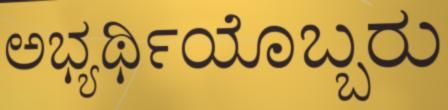
ಅಭ್ಯರ್ಥಿಯೊಬ್ಬರು